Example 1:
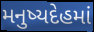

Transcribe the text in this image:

મનુષ્યદેહમાં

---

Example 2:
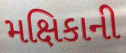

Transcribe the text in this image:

મક્ષિકાની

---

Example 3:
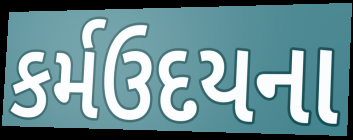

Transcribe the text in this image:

કર્મઉદયના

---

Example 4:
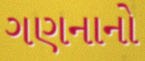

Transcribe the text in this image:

ગણનાનો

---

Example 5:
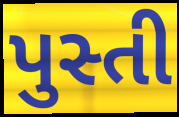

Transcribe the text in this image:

પુસ્તી